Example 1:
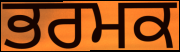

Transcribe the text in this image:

ਭਰਮਕ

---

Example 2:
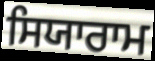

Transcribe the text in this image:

ਸਿਯਾਰਾਮ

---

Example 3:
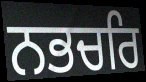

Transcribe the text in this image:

ਨਭਚਰਿ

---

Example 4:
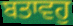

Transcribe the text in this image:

ਬਤਾਵਹੁ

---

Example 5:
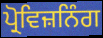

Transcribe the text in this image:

ਪ੍ਰੋਵਿਜ਼ਨਿੰਗ